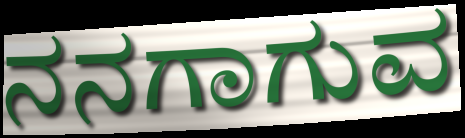
ನನಗಾಗುವ